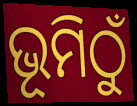
ଭୂମିଠୁଁ